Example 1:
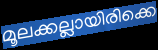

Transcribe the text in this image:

മൂലക്കല്ലായിരിക്കെ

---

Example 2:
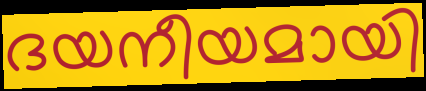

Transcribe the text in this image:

ദയനീയമായി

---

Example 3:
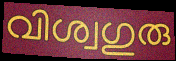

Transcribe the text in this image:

വിശ്വഗുരു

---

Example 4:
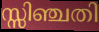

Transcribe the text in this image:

സ്സിഞ്ചതി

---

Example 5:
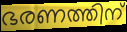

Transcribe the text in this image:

ഭരണത്തിന്